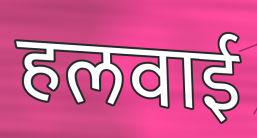
हलवाई